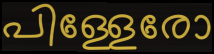
പിള്ളേരോ